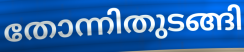
തോന്നിതുടങ്ങി